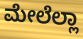
ಮೇಲೆಲ್ಲಾ